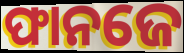
ଫାନଜେ